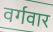
वर्गवार